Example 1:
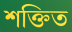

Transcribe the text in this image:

শক্তিত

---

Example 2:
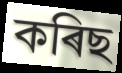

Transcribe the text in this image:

কৰিছ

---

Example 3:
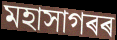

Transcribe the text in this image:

মহাসাগৰৰ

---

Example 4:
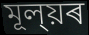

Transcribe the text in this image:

মূল্য়ৰ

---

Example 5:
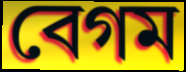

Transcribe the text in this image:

বেগম